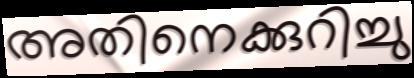
അതിനെക്കുറിച്ചു